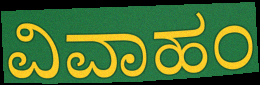
ವಿವಾಹಂ